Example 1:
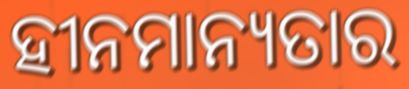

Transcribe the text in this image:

ହୀନମାନ୍ୟତାର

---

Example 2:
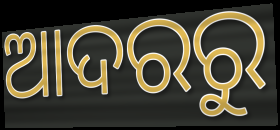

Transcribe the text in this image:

ଆଦରରୁ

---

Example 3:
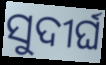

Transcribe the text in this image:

ସୁଦୀର୍ଘ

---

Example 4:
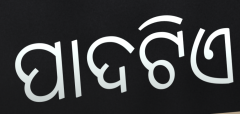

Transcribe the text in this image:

ପାଦଟିଏ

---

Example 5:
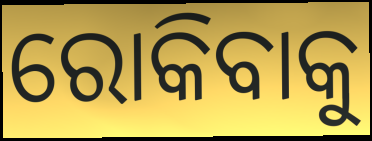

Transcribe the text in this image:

ରୋକିବାକୁ